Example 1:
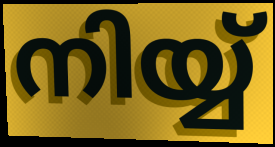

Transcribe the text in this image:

നിയ്യ്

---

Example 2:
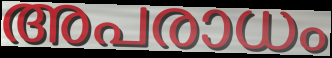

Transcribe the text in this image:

അപരാധം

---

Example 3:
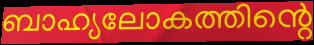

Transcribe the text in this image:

ബാഹ്യലോകത്തിന്റെ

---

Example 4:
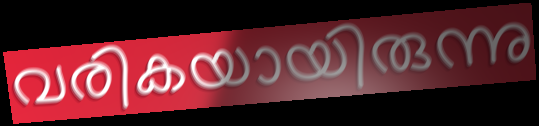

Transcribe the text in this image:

വരികയായിരുന്നു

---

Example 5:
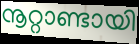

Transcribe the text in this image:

നൂറ്റാണ്ടായി